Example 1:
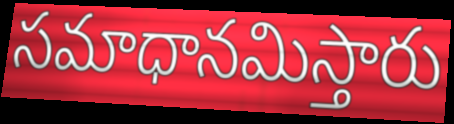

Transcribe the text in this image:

సమాధానమిస్తారు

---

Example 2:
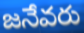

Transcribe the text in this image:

జనేవరు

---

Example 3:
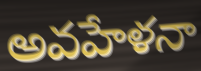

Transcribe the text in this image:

అవహేళనా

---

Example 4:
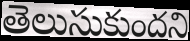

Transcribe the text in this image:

తెలుసుకుందని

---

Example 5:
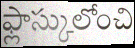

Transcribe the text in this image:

ఫ్లాస్కులోంచి